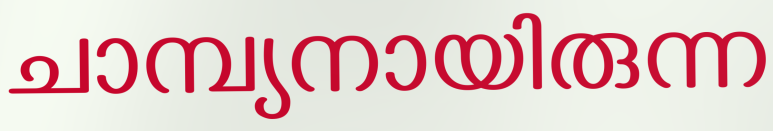
ചാമ്പ്യനായിരുന്ന